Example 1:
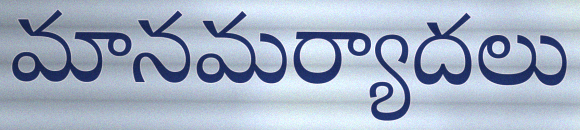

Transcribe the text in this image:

మానమర్యాదలు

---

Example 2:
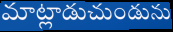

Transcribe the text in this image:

మాట్లాడుచుండును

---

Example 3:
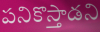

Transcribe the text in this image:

పనికొస్తాడని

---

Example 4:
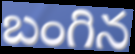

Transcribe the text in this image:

బంగిన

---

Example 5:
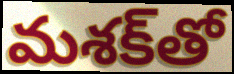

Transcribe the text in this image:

మశక్‌తో